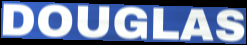
DOUGLAS